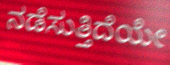
ನಡೆಸುತ್ತಿದೆಯೇ